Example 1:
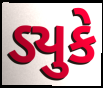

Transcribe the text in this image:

ડ્યુકે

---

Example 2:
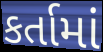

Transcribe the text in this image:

કર્તામાં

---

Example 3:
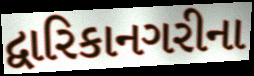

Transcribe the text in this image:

દ્વારિકાનગરીના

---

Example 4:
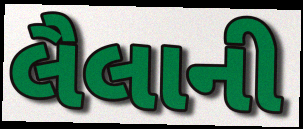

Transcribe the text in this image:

લૈલાની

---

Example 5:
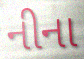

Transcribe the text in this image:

નીના